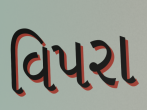
વિપરા